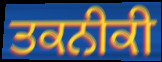
ਤਕਨੀਕੀ